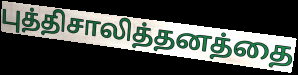
புத்திசாலித்தனத்தை